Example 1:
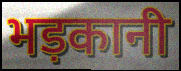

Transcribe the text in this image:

भड़कानी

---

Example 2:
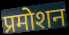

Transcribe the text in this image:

प्रमोशन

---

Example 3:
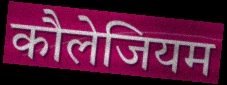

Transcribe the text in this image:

कौलेजियम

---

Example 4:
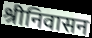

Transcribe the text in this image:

श्रीनिवासन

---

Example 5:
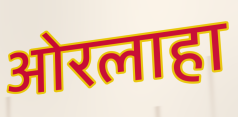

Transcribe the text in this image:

ओरलाहा